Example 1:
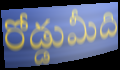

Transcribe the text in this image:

రోడ్డుమీది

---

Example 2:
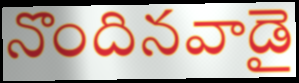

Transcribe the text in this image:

నొందినవాడై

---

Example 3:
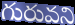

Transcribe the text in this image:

గురువని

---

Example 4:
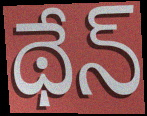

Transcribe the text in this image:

థేన్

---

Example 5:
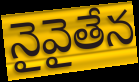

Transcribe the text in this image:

నైవైతేన